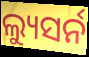
ଲ୍ୟୁସର୍ନ